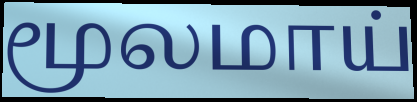
மூலமாய்